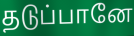
தடுப்பானே